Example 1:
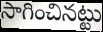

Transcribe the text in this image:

సాగించినట్టు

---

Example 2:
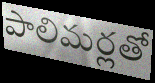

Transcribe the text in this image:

పాలిమర్లతో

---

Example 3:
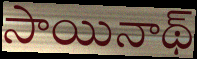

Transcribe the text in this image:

సాయినాథ్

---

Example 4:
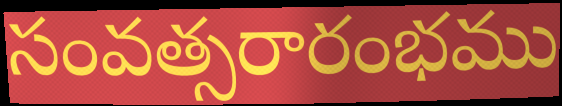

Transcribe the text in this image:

సంవత్సరారంభము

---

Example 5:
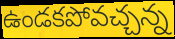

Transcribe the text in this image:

ఉండకపోవచ్చన్న